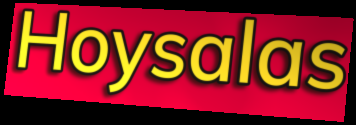
Hoysalas